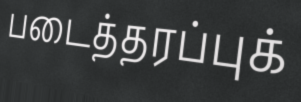
படைத்தரப்புக்